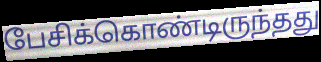
பேசிக்கொண்டிருந்தது